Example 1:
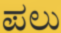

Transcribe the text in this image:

ಪಲು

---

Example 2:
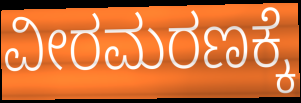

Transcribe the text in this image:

ವೀರಮರಣಕ್ಕೆ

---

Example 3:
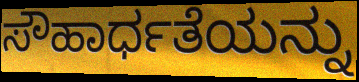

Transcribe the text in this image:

ಸೌಹಾರ್ಧತೆಯನ್ನು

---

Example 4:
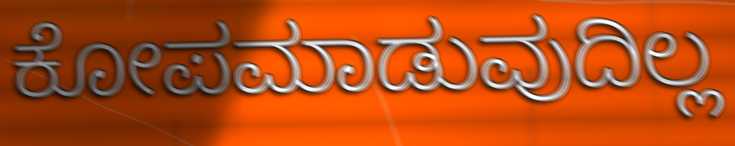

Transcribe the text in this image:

ಕೋಪಮಾಡುವುದಿಲ್ಲ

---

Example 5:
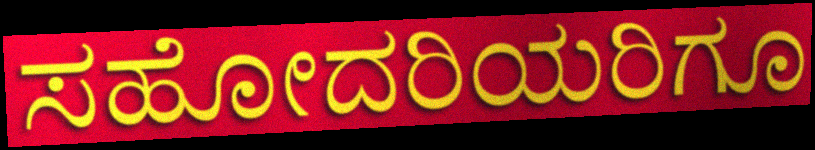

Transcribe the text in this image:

ಸಹೋದರಿಯರಿಗೂ